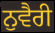
ਨੁਵੈਰੀ